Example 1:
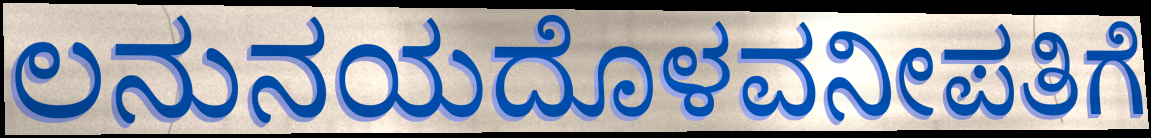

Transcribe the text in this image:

ಲನುನಯದೊಳವನೀಪತಿಗೆ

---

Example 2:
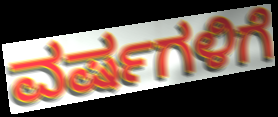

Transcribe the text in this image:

ವರ್ಷಗಳಿಗೆ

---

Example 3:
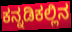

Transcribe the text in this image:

ಕನ್ನಡಿಕಲ್ಲಿನ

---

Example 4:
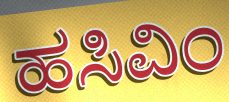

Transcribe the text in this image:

ಹಸಿವಿಂ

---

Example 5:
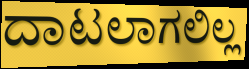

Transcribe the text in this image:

ದಾಟಲಾಗಲಿಲ್ಲ